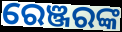
ରେଞ୍ଜରଙ୍କ